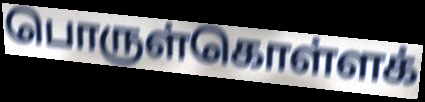
பொருள்கொள்ளக்